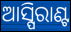
ଆସ୍ପିରାଣ୍ଟ